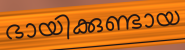
ഭായിക്കുണ്ടായ